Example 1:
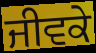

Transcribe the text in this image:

ਜੀਵਕੇ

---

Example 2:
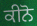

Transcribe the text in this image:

ਕੀਨੋ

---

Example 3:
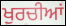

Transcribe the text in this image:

ਖੁਰਚੀਆਂ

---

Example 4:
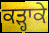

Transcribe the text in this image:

ਕੜ੍ਹਾਕੇ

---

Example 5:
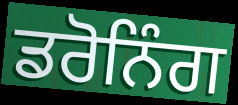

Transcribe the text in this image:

ਡਰੋਨਿੰਗ